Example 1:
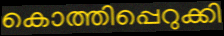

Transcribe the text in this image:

കൊത്തിപ്പെറുക്കി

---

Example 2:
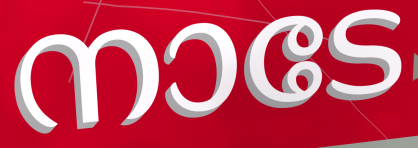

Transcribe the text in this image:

നാടേ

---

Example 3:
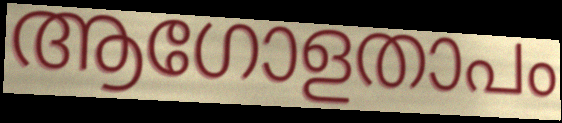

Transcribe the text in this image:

ആഗോളതാപം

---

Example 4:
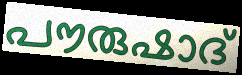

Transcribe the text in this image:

പൗരുഷാദ്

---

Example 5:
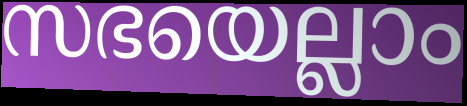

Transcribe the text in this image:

സഭയെല്ലാം